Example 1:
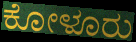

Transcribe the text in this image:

ಕೋಳೂರು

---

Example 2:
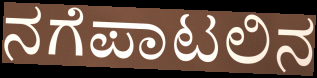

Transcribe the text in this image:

ನಗೆಪಾಟಲಿನ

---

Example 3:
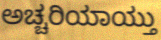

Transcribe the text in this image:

ಅಚ್ಚರಿಯಾಯ್ತು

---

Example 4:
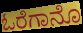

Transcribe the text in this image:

ಓರೆಗಾನೊ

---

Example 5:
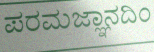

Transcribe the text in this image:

ಪರಮಜ್ಞಾನದಿಂ